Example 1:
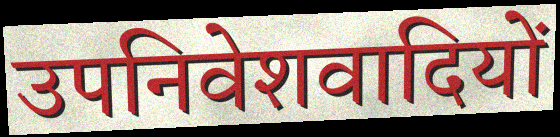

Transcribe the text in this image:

उपनिवेशवादियों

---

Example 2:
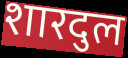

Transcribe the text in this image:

शारदुल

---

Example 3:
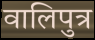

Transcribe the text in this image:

वालिपुत्र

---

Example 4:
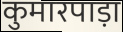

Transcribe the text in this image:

कुमारपाड़ा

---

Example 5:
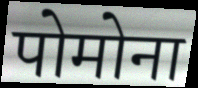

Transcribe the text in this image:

पोमोना